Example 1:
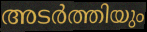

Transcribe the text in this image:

അടർത്തിയും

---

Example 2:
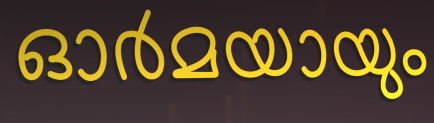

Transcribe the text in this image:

ഓർമയായും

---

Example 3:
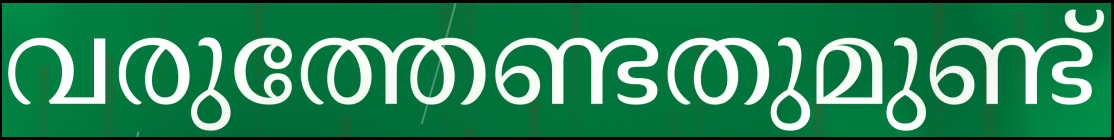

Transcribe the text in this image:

വരുത്തേണ്ടതുമുണ്ട്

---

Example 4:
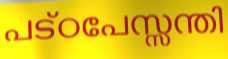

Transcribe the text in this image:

പട്ഠപേസ്സന്തി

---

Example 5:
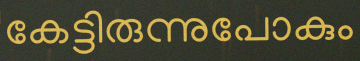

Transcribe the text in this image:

കേട്ടിരുന്നുപോകും